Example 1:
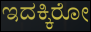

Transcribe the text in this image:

ಇದಕ್ಕಿರೋ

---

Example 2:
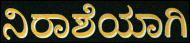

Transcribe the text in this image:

ನಿರಾಶೆಯಾಗಿ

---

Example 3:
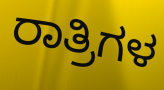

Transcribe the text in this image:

ರಾತ್ರಿಗಳ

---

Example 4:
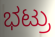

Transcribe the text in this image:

ಭಟ್ರು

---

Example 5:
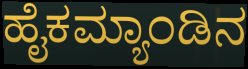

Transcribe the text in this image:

ಹೈಕಮ್ಯಾಂಡಿನ